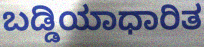
ಬಡ್ಡಿಯಾಧಾರಿತ